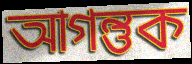
আগন্তুক